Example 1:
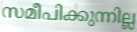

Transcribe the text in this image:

സമീപിക്കുന്നില്ല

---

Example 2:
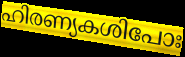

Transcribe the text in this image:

ഹിരണ്യകശിപോഃ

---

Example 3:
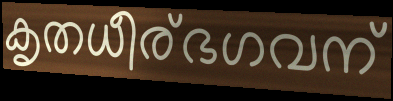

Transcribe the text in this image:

കൃതധീര്ഭഗവന്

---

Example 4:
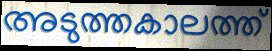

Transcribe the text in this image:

അടുത്തകാലത്ത്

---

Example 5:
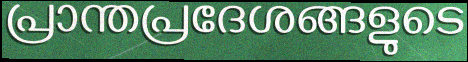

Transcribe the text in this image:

പ്രാന്തപ്രദേശങ്ങളുടെ